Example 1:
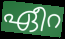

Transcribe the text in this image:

ഏീറ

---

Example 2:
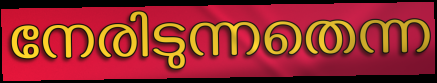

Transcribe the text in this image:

നേരിടുന്നതെന്ന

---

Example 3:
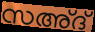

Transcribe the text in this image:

സഅ്ദ്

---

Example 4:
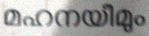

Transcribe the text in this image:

മഹനയീമും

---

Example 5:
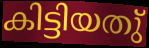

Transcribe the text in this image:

കിട്ടിയതു്